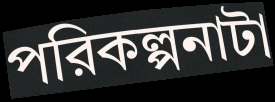
পরিকল্পনাটা